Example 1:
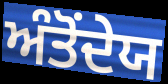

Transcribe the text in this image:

ਅੰਤੋਂਦੇਯ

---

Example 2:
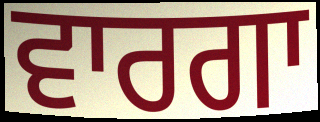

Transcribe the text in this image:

ਵਾਰਗਾ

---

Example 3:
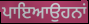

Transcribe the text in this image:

ਪਾਇਆਉਹਨਾਂ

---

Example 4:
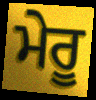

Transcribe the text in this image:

ਮੇਰੂ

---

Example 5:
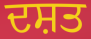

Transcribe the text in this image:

ਦਸ਼ਤ